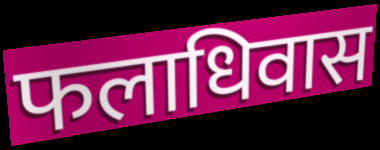
फलाधिवास